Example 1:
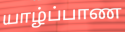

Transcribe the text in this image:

யாழ்ப்பாண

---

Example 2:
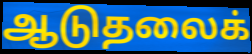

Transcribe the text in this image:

ஆடுதலைக்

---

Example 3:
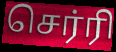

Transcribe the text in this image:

செர்ரி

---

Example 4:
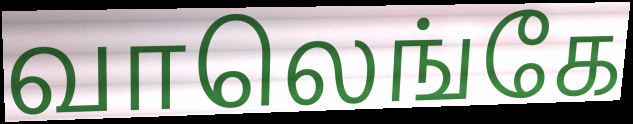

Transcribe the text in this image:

வாலெங்கே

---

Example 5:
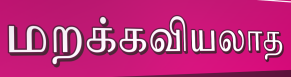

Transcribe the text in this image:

மறக்கவியலாத